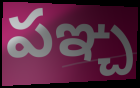
పఞ్చ